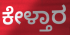
ಕೇಳ್ತಾರ